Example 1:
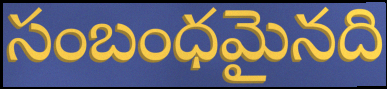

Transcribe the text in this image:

సంబంధమైనది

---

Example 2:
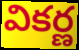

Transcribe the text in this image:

వికర్ణ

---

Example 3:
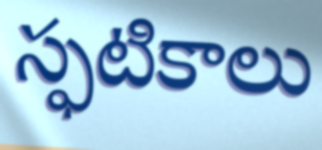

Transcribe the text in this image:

స్ఫటికాలు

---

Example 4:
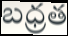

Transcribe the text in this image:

బధ్రత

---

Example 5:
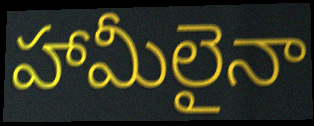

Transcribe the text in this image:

హామీలైనా